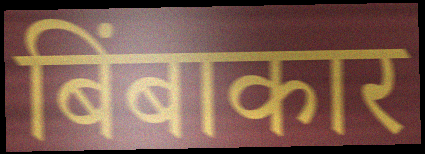
बिंबाकार